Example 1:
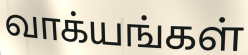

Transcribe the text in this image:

வாக்யங்கள்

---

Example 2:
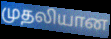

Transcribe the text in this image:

முதலியான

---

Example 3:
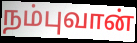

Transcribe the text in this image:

நம்புவான்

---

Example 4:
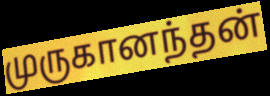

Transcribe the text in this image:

முருகானந்தன்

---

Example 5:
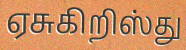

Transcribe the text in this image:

ஏசுகிறிஸ்து